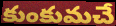
కుంకుమచే